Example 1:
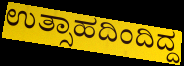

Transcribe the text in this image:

ಉತ್ಸಾಹದಿಂದಿದ್ದ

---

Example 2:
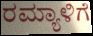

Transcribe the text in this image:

ರಮ್ಯಾಳಿಗೆ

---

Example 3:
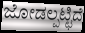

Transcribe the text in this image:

ಜೋಡಲ್ಪಟ್ಟಿದೆ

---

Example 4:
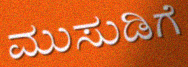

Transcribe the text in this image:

ಮುಸುಡಿಗೆ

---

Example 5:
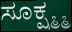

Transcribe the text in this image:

ಸೂಕ್ಷ್ಮ್ಮ